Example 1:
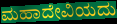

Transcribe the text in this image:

ಮಹಾದೇವಿಯದು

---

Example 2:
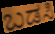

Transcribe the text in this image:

ಬಡಸಿ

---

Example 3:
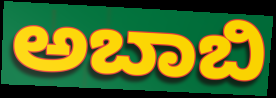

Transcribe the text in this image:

ಅಬಾಬಿ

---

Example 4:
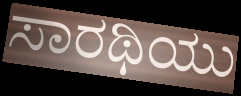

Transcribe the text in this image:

ಸಾರಥಿಯು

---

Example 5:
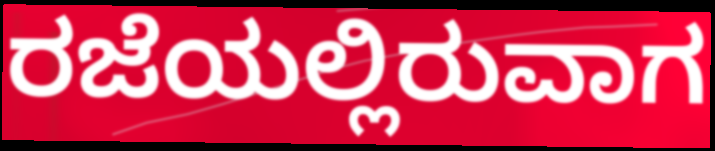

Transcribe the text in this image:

ರಜೆಯಲ್ಲಿರುವಾಗ